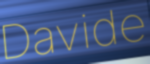
Davide